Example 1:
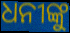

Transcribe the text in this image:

ଧନୀଙ୍କୁ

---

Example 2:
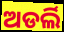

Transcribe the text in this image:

ଅଡର୍ଲି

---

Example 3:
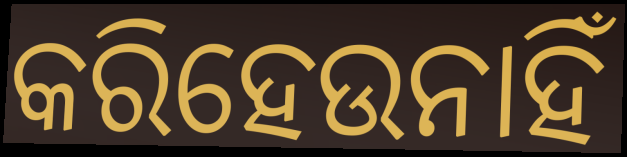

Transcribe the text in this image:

କରିହେଉନାହିଁ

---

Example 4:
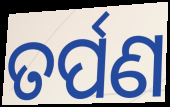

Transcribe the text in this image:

ତର୍ପଣ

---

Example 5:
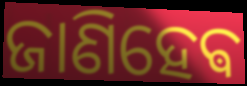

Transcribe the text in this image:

ଜାଣିହେଵ